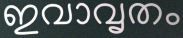
ഇവാവൃതം